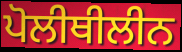
ਪੋਲੀਥੀਲੀਨ